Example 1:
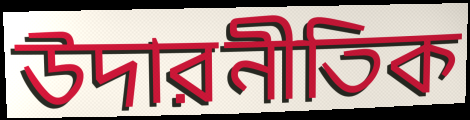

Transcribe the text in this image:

উদারনীতিক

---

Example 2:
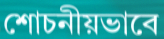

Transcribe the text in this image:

শোচনীয়ভাবে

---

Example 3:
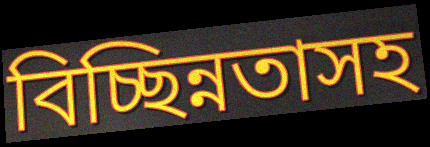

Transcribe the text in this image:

বিচ্ছিন্নতাসহ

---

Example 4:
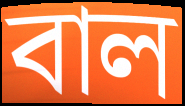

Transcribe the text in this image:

বাল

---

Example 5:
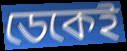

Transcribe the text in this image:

ডেকেই